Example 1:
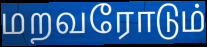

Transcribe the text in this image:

மறவரோடும்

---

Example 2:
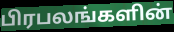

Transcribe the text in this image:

பிரபலங்களின்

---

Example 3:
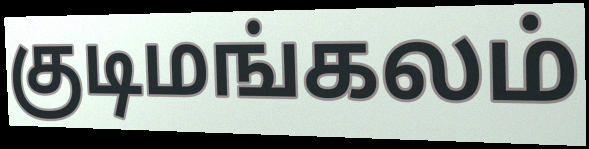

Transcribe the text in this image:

குடிமங்கலம்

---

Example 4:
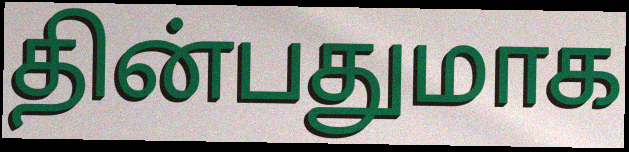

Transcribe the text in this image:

தின்பதுமாக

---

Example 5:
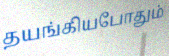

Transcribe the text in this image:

தயங்கியபோதும்